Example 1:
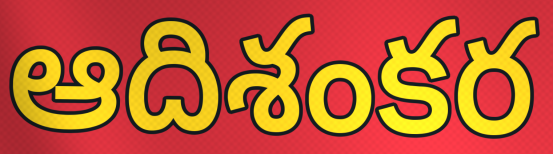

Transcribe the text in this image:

ఆదిశంకర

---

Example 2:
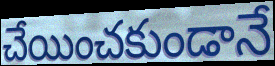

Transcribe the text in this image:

చేయించకుండానే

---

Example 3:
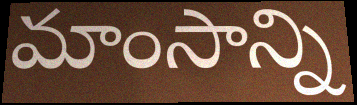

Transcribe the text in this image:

మాంసాన్ని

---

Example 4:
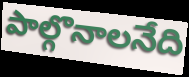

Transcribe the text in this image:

పాల్గొనాలనేది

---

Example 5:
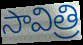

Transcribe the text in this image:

సావిత్రి